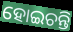
ହୋଇଚନ୍ତି